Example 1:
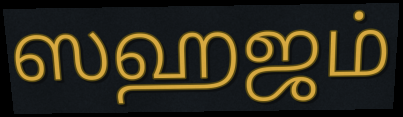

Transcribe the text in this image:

ஸஹஜம்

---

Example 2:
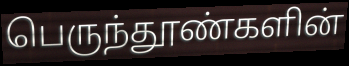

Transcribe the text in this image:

பெருந்தூண்களின்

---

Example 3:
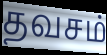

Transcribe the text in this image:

தவசம்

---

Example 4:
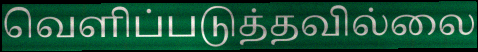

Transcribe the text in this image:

வெளிப்படுத்தவில்லை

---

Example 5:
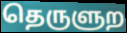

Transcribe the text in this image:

தெருளுற